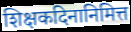
शिक्षकदिनानिमित्त